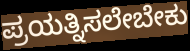
ಪ್ರಯತ್ನಿಸಲೇಬೇಕು